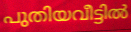
പുതിയവീട്ടിൽ